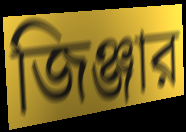
জিঞ্জার